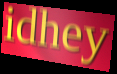
idhey